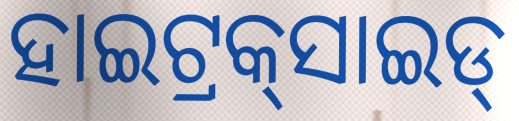
ହାଇଟ୍ରକ୍‌ସାଇଡ୍